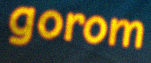
gorom